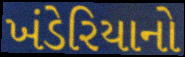
ખંડેરિયાનો